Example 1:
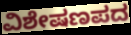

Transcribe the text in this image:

ವಿಶೇಷಣಪದ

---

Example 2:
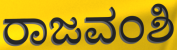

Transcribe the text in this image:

ರಾಜವಂಶಿ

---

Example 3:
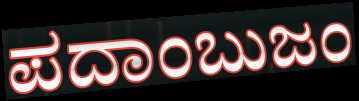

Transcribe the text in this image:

ಪದಾಂಬುಜಂ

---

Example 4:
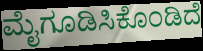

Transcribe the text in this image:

ಮೈಗೂಡಿಸಿಕೊಂಡಿದೆ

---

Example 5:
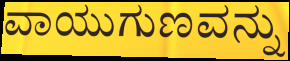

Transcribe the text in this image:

ವಾಯುಗುಣವನ್ನು